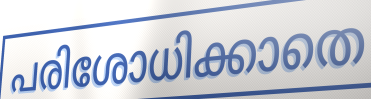
പരിശോധിക്കാതെ